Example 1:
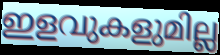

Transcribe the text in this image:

ഇളവുകളുമില്ല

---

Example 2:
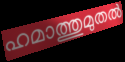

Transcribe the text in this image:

ഹമാത്തുമുതൽ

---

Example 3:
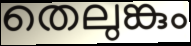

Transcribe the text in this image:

തെലുങ്കും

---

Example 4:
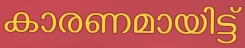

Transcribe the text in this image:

കാരണമായിട്ട്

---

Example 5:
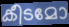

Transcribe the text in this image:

കീടമോ